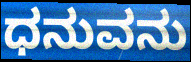
ಧನುವನು